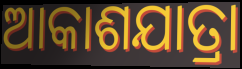
ଆକାଶଯାତ୍ରା